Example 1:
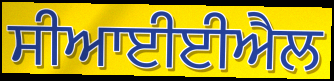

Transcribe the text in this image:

ਸੀਆਈਈਐਲ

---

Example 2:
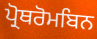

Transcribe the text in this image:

ਪ੍ਰੋਥਰੋਮਬਿਨ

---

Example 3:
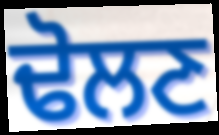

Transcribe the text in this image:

ਢੋਲਣ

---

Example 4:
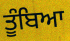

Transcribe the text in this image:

ਤੂੰਬਿਆ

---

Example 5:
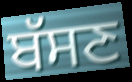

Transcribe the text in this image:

ਬੱਸਣ